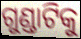
ଗୁଣ୍ଡାଟିକୁ